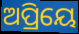
ଅପ୍ରିୟେ